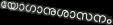
യോഗാനുശാസനം